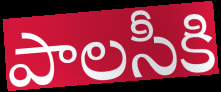
పాలసీకి